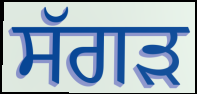
ਸੱਗੜ